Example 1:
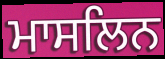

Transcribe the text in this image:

ਮਾਸਲਿਨ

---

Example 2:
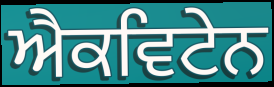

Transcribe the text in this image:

ਐਕਵਿਟੇਨ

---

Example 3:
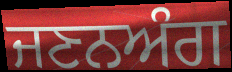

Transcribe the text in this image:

ਜਣਨਅੰਗ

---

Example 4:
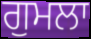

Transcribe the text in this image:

ਗੁਮਲਾ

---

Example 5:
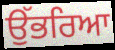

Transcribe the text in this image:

ਉੱਭਰਿਆ